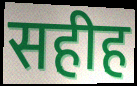
सह़ीह़